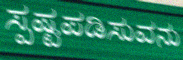
ಸ್ಪಷ್ಟಪಡಿಸುವನು